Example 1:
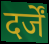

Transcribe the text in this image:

दर्जें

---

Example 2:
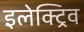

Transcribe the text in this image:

इलेक्ट्रिव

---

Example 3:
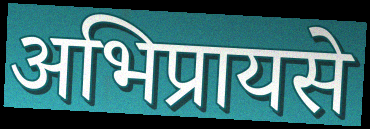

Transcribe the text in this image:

अभिप्रायसे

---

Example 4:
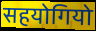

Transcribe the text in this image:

सहयोगियो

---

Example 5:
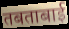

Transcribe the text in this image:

तबताबाई